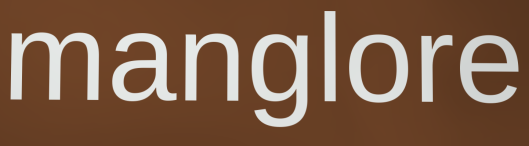
manglore